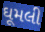
ઘૂમલી